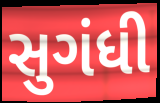
સુગંધી